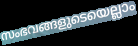
സംഭവങ്ങളുടെയെല്ലാം